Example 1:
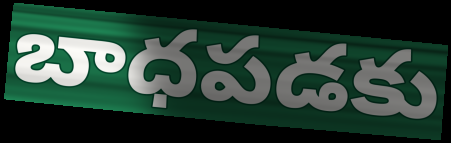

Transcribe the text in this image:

బాధపడకు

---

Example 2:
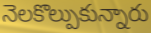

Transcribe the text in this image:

నెలకొల్పుకున్నారు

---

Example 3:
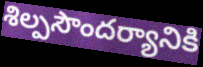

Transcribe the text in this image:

శిల్పసౌందర్యానికి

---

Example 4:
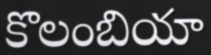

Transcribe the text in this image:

కొలంబియా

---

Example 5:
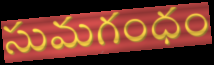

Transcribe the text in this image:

సుమగంధం